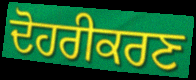
ਦੋਹਰੀਕਰਣ